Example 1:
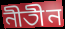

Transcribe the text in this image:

নীতীন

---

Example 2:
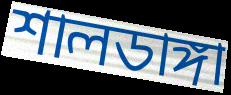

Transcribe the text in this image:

শালডাঙ্গা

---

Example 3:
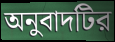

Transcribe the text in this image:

অনুবাদটির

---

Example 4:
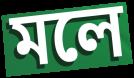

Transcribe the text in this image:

মলে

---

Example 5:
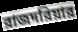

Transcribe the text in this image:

রাজদরিয়ার